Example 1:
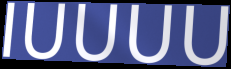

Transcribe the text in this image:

IUUUU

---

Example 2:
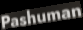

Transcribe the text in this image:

Pashuman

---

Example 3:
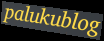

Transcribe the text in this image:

palukublog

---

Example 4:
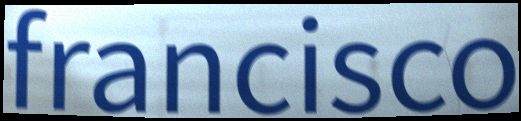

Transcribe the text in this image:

francisco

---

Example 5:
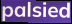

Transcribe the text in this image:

palsied